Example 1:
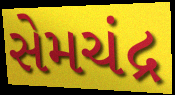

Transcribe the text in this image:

સેમચંદ્ર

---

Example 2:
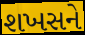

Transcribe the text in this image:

શખસને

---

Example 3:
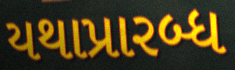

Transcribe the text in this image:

યથાપ્રારબ્ધ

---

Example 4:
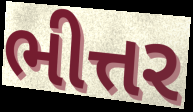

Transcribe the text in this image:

ભીત્તર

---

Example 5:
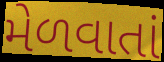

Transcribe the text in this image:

મેળવાતાં